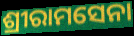
ଶ୍ରୀରାମସେନା